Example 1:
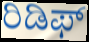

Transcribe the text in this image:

ರಿಡಿಫ್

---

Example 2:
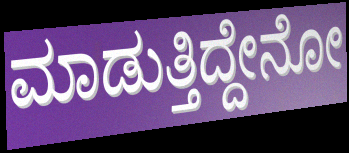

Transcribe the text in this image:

ಮಾಡುತ್ತಿದ್ದೇನೋ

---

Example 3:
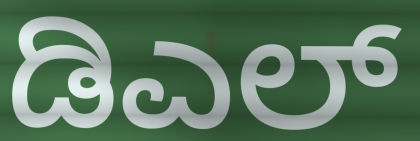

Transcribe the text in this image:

ಡಿಎಲ್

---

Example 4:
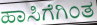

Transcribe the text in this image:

ಹಾಸಿಗೆಗಿಂತ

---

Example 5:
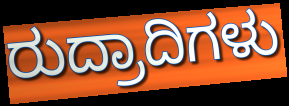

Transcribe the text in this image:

ರುದ್ರಾದಿಗಳು